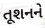
તૂશનને